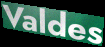
Valdes